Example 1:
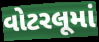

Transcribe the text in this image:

વોટરલૂમાં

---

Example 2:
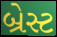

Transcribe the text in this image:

બ્રેસ્ટ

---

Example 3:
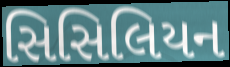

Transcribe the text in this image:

સિસિલિયન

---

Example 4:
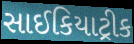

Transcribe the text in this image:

સાઈકિયાટ્રીક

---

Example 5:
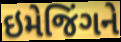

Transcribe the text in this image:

ઇમેજિંગને